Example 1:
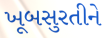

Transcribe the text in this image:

ખૂબસુરતીને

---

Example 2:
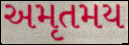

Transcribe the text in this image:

અમૃતમય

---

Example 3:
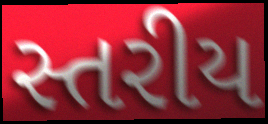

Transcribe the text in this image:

સ્તરીય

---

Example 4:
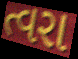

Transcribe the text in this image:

ત્વરા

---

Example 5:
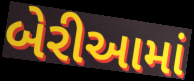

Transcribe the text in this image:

બેરીઆમાં